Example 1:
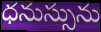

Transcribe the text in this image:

ధనుస్సును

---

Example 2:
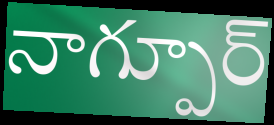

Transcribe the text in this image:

నాగ్పూర్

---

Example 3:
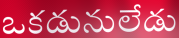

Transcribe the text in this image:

ఒకడునులేడు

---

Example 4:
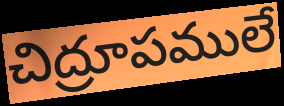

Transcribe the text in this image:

చిద్రూపములే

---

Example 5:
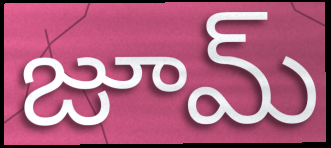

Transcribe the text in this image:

జూమ్